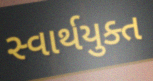
સ્વાર્થયુક્ત